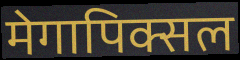
मेगापिक्सल